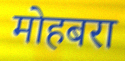
मोहबरा